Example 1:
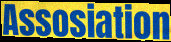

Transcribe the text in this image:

Assosiation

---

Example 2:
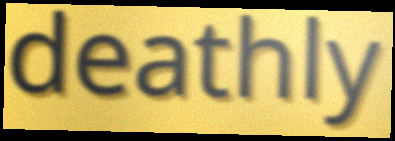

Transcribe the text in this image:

deathly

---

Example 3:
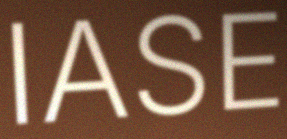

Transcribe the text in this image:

IASE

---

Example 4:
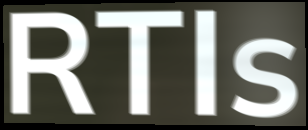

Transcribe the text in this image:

RTIs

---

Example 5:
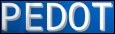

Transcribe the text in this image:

PEDOT